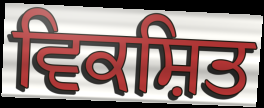
ਵਿਕਸ਼ਿਤ